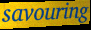
savouring